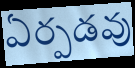
ఏర్పడవు